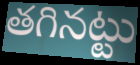
తగినట్టు